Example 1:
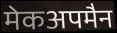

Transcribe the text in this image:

मेकअपमैन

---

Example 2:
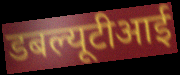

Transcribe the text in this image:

डबल्यूटीआई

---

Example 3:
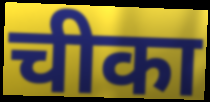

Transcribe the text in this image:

चीका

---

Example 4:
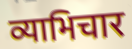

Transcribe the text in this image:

व्याभिचार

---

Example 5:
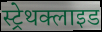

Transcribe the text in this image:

स्ट्रेथक्लाइड